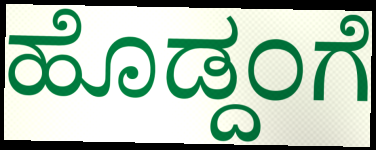
ಹೊಡ್ದಂಗೆ